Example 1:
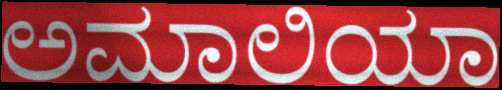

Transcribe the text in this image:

ಅಮಾಲಿಯಾ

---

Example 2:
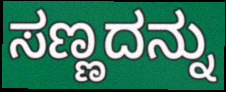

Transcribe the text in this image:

ಸಣ್ಣದನ್ನು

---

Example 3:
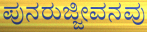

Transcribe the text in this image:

ಪುನರುಜ್ಜೀವನವು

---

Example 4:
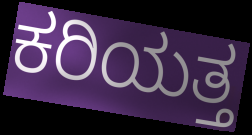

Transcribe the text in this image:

ಕರಿಯತ್ತ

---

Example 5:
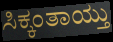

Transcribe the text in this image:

ಸಿಕ್ಕಂತಾಯ್ತು